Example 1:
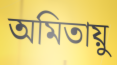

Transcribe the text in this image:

অমিতায়ু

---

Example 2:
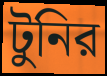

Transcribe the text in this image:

টুনির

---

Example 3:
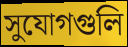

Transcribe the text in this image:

সুযোগগুলি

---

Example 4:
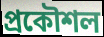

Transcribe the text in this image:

প্রকৌশল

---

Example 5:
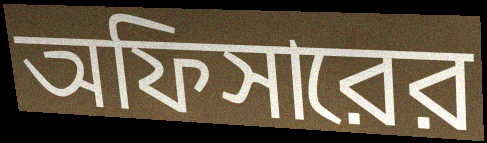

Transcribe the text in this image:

অফিসারের